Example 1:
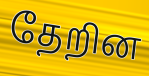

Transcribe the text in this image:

தேறின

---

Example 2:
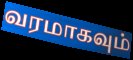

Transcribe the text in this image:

வரமாகவும்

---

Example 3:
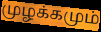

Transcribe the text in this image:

முழக்கமும்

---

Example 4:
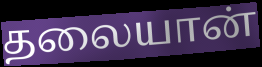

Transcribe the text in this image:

தலையான்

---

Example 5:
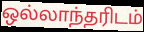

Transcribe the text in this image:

ஒல்லாந்தரிடம்